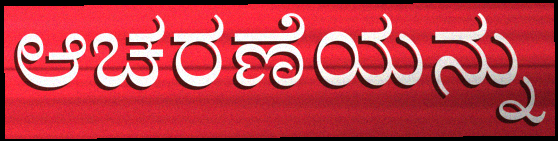
ಆಚರಣೆಯನ್ನು